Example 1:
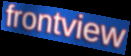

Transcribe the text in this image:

frontview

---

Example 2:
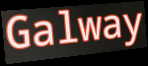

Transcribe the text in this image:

Galway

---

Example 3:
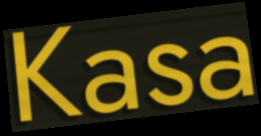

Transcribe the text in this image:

Kasa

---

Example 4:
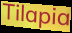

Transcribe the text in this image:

Tilapia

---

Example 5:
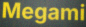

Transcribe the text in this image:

Megami